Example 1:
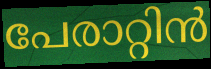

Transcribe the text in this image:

പേരാറ്റിൻ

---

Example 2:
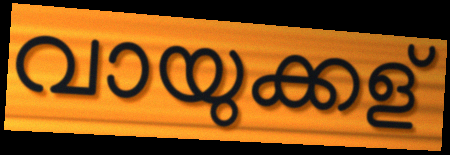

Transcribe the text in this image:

വായുക്കള്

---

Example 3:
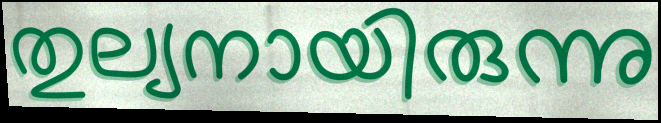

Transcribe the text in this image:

തുല്യനായിരുന്നു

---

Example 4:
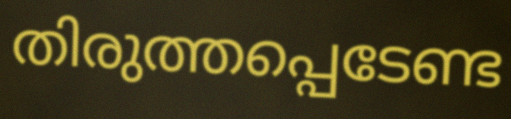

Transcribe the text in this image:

തിരുത്തപ്പെടേണ്ട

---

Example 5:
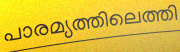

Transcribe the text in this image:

പാരമ്യത്തിലെത്തി